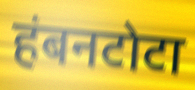
हंबनटोटा